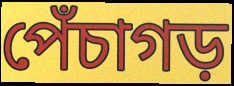
পেঁচাগড়